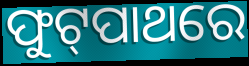
ଫୁଟ୍‍ପାଥରେ